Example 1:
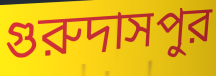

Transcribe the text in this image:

গুরুদাসপুর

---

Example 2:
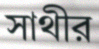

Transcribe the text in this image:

সাথীর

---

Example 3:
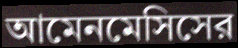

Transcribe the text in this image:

আমেনমেসিসের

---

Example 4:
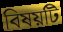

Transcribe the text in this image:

বিষয়টি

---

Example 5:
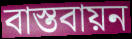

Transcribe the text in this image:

বাস্তবায়ন